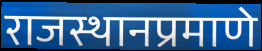
राजस्थानप्रमाणे